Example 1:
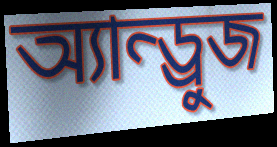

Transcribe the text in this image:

অ্যান্ড্রুজ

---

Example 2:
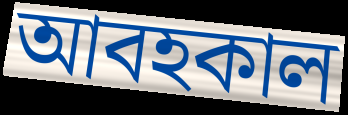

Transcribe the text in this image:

আবহকাল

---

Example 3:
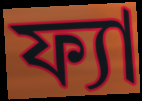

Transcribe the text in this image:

ফ্যা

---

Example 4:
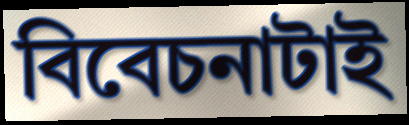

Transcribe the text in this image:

বিবেচনাটাই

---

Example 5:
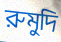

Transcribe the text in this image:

রুমুদি